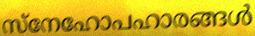
സ്നേഹോപഹാരങ്ങൾ